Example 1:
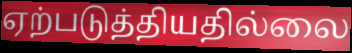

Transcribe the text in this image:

ஏற்படுத்தியதில்லை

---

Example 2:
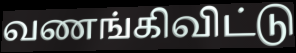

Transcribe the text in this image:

வணங்கிவிட்டு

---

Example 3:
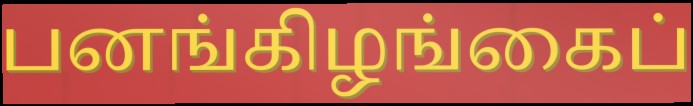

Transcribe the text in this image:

பனங்கிழங்கைப்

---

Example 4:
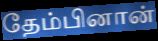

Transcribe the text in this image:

தேம்பினான்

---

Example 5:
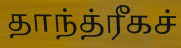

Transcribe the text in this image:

தாந்த்ரீகச்